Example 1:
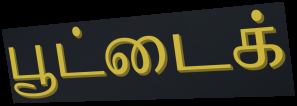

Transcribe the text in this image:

பூட்டைக்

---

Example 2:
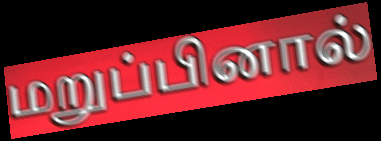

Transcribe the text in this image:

மறுப்பினால்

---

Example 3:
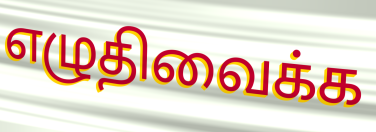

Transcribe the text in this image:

எழுதிவைக்க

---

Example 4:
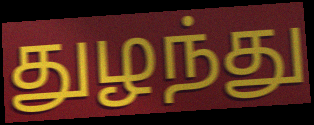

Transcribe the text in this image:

துழந்து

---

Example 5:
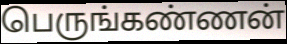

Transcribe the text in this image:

பெருங்கண்ணன்